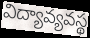
విద్యావ్యవస్థ